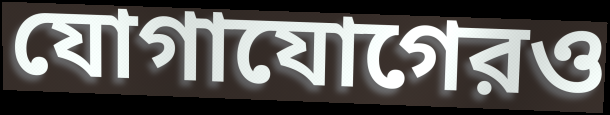
যোগাযোগেরও